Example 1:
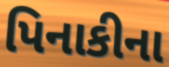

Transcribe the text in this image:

પિનાકીના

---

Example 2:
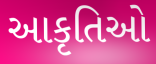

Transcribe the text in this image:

આકૃતિઓ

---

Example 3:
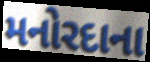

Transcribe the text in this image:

મનોરદાના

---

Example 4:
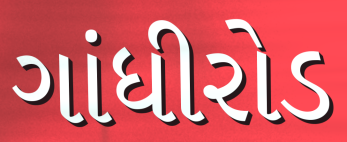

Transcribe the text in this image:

ગાંધીરોડ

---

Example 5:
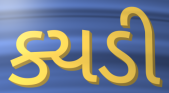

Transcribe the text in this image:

ક્યડી